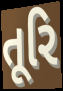
તૂરિ